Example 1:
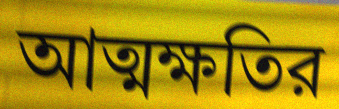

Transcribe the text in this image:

আত্মক্ষতির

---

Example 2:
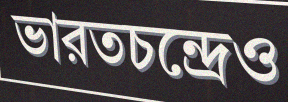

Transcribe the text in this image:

ভারতচন্দ্রেও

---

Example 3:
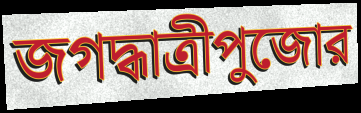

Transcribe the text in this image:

জগদ্ধাত্রীপুজোর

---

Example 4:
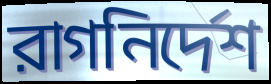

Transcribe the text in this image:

রাগনির্দেশ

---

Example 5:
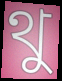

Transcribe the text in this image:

থু